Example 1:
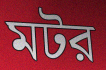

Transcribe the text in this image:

মটর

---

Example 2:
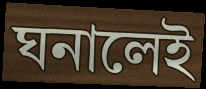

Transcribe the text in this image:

ঘনালেই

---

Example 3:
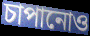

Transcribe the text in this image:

চাপানোও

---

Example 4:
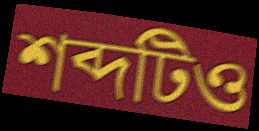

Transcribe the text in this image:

শব্দটিও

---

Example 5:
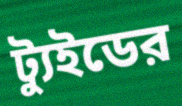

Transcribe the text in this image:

ট্যুইডের